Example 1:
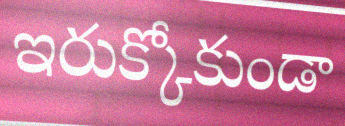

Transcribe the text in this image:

ఇరుక్కోకుండా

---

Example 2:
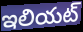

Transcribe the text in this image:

ఇలియట్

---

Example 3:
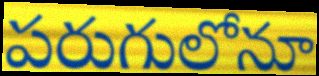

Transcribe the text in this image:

పరుగులోనూ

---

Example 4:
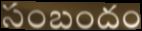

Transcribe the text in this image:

సంబందం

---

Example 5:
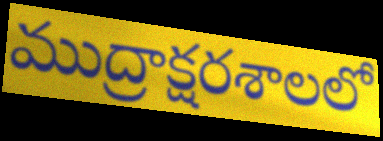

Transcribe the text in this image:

ముద్రాక్షరశాలలో